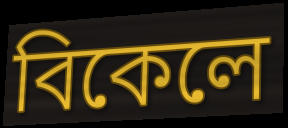
বিকেলে